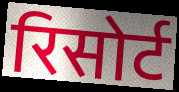
रिसोर्ट